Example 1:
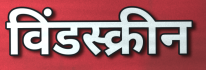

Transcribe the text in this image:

विंडस्क्रीन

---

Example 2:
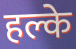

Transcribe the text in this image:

हल्‍के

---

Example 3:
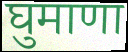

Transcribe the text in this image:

घुमाणा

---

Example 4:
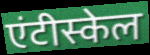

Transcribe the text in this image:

एंटीस्केल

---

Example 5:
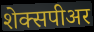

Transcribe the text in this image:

शेक्सपीअर